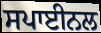
ਸਪਾਈਨਲ